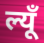
ल्यूँ